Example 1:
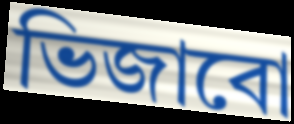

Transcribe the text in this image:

ভিজাবো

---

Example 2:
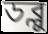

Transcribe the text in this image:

ডব্লু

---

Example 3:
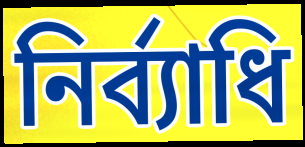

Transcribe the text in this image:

নির্ব্যাধি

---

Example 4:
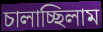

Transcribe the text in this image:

চালাচ্ছিলাম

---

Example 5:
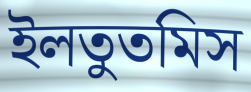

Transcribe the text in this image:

ইলতুতমিস